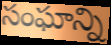
సంఘాన్ని